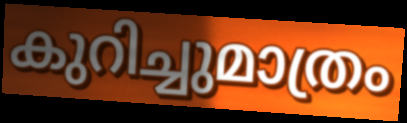
കുറിച്ചുമാത്രം